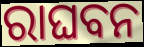
ରାଘବନ